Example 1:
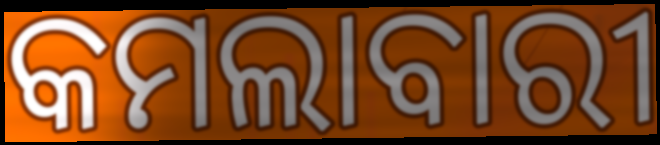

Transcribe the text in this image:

କମଲାବାରୀ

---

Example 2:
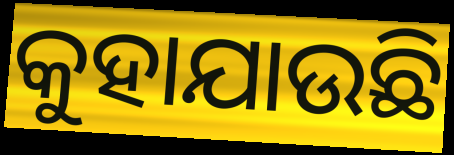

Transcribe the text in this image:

କୁହାଯାଉଛି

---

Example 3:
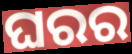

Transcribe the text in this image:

ଘରର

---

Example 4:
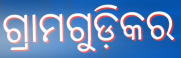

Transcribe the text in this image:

ଗ୍ରାମଗୁଡ଼ିକର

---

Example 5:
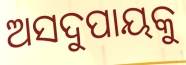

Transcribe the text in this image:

ଅସଦୁପାୟକୁ